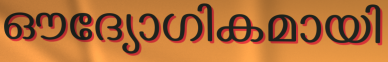
ഔദ്യോഗികമായി